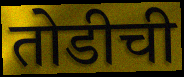
तोडीची